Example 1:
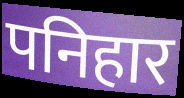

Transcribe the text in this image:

पनिहार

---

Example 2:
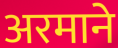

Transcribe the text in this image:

अरमाने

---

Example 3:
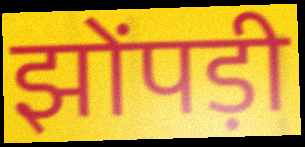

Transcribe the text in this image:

झोंपड़ी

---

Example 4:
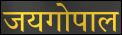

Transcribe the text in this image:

जयगोपाल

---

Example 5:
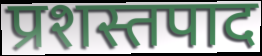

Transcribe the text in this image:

प्रशस्तपाद